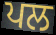
ਪਲ